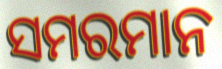
ସମରମାନ